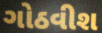
ગોઠવીશ